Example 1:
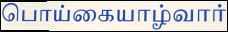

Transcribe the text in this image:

பொய்கையாழ்வார்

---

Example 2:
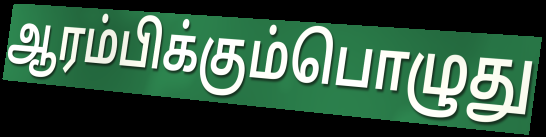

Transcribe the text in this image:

ஆரம்பிக்கும்பொழுது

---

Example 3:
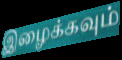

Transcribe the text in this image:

இழைக்கவும்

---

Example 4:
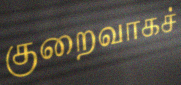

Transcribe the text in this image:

குறைவாகச்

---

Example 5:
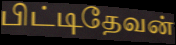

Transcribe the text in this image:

பிட்டிதேவன்